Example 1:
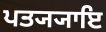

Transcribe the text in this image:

ਪਤ੍ਯ੍ਯਾਇ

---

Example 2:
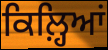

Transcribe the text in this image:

ਕਿਲ਼੍ਹਿਆਂ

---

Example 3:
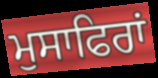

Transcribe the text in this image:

ਮੁਸਾਫਿਰਾਂ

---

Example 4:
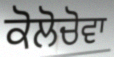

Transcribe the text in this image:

ਕੋਲੋਚੋਵਾ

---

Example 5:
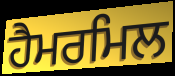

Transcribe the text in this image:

ਹੈਮਰਮਿਲ